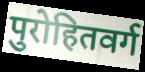
पुरोहितवर्ग